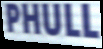
PHULL